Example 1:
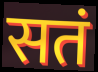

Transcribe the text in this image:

सतं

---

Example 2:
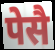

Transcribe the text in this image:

पेसै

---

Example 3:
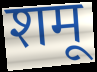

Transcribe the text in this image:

शमू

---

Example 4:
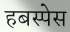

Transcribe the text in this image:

हबस्पेस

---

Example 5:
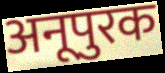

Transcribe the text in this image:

अनूपुरक